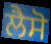
ਲੈਸੋ